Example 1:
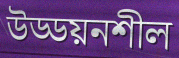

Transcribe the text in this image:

উড্ডয়নশীল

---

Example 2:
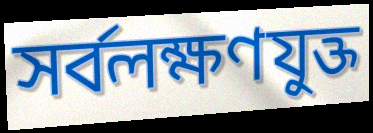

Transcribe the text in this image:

সর্বলক্ষণযুক্ত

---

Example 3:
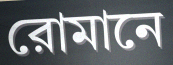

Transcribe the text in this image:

রোমানে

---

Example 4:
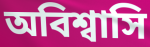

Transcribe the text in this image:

অবিশ্বাসি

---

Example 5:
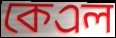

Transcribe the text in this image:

কেএল